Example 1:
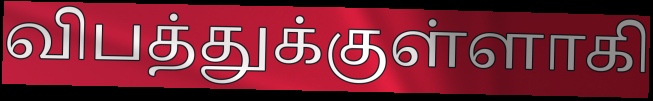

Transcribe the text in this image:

விபத்துக்குள்ளாகி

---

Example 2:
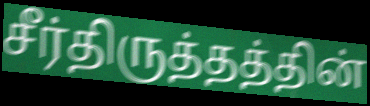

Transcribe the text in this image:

சீர்திருத்தத்தின்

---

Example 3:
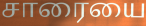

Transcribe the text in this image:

சாரையை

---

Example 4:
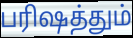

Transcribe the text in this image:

பரிஷத்தும்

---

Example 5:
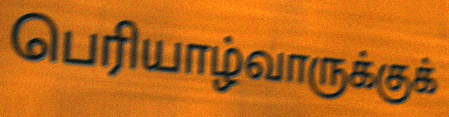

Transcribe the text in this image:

பெரியாழ்வாருக்குக்